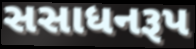
સસાધનરૂપ